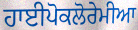
ਹਾਈਪੋਕਲੋਰੇਮੀਆ